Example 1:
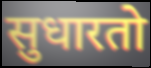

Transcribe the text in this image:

सुधारतो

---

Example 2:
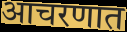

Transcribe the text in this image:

आचरणात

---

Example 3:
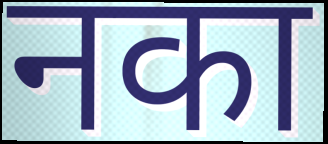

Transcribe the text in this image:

नका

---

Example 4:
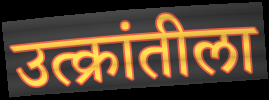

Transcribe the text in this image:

उत्क्रांतीला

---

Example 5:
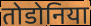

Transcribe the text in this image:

तोडोनिया